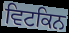
ਵਿਟਕਿਨ